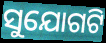
ସୁଯୋଗଟି